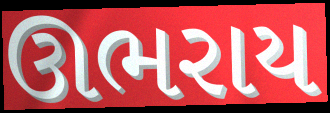
ઊભરાય